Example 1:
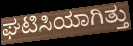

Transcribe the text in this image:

ಘಟಿಸಿಯಾಗಿತ್ತು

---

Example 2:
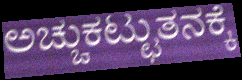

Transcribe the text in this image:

ಅಚ್ಚುಕಟ್ಟುತನಕ್ಕೆ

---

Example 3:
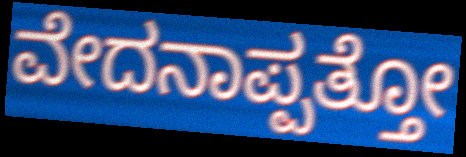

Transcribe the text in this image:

ವೇದನಾಪ್ಪತ್ತೋ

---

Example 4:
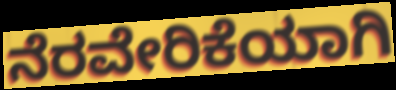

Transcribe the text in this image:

ನೆರವೇರಿಕೆಯಾಗಿ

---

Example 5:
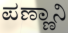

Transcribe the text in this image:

ಪಣ್ಣಾನಿ